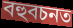
বহুবচনত